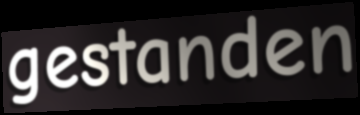
gestanden